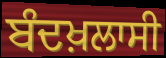
ਬੰਦਖ਼ਲਾਸੀ